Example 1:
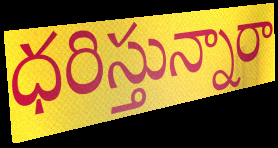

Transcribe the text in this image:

ధరిస్తున్నారా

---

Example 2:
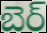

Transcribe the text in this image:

బెర్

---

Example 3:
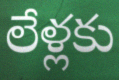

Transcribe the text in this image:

లేళ్లకు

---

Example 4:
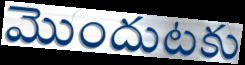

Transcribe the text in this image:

మొందుటకు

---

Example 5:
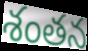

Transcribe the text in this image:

శంతన